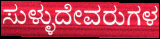
ಸುಳ್ಳುದೇವರುಗಳ